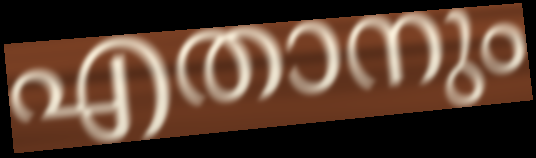
എതാനും